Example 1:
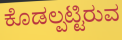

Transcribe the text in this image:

ಕೊಡಲ್ಪಟ್ಟಿರುವ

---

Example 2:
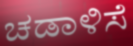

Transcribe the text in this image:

ಚಡಾಳಿಸೆ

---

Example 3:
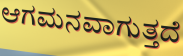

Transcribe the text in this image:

ಆಗಮನವಾಗುತ್ತದೆ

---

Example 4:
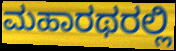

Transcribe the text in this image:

ಮಹಾರಥರಲ್ಲಿ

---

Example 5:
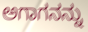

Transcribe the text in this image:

ಅಗಾಗನನ್ನು